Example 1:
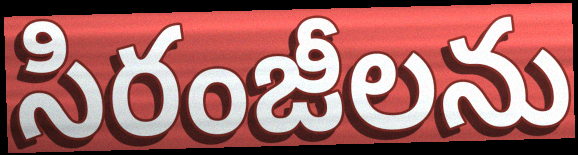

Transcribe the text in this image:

సిరంజీలను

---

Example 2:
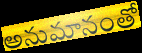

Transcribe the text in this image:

అనుమానంతో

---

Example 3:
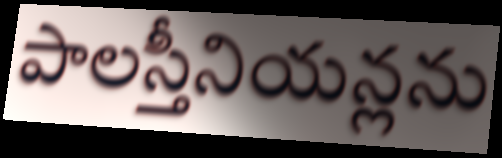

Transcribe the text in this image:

పాలస్తీనియన్లను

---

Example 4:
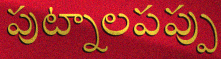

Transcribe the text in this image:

పుట్నాలపప్పు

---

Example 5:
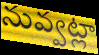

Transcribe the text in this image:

నువ్వట్లా